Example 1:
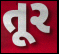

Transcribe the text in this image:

તૂર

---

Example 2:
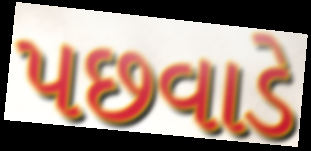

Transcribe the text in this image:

પછવાડે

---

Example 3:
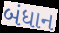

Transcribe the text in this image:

બંધાન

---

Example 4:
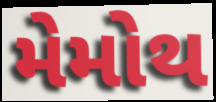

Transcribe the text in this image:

મેમોથ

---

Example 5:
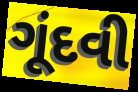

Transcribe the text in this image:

ગૂંદવી